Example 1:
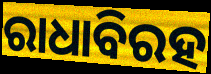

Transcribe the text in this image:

ରାଧାବିରହ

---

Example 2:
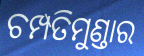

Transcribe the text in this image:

ଚମ୍ପତିମୁଣ୍ଡାର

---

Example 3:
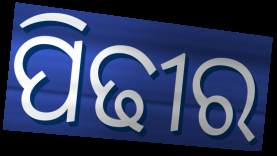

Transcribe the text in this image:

ପିଢୀର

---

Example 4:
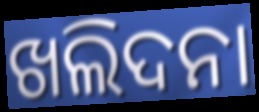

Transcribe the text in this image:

ଖଲିଦନା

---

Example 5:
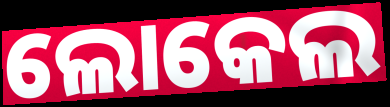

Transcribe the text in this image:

ଲୋକେଲ